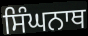
ਸਿੰਘਨਾਥ